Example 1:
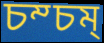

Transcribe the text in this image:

চম্চম্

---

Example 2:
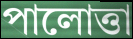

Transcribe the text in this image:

পালোত্তা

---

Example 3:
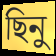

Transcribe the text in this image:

ছিনু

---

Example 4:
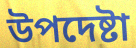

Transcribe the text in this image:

উপদেষ্টা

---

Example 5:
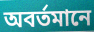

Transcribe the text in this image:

অবর্তমানে